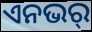
ଏନଭର୍